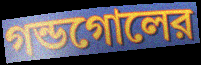
গন্ডগোলের